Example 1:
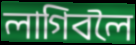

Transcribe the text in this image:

লাগিবলৈ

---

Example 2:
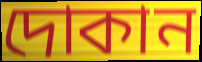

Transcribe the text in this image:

দোকান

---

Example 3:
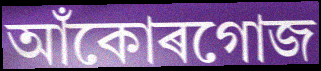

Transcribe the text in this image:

আঁকোৰগোজ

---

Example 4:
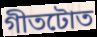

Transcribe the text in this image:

গীতটোত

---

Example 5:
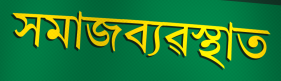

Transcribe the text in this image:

সমাজব্যৱস্থাত